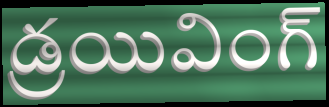
డ్రయివింగ్